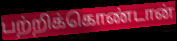
பற்றிக்கொண்டான்